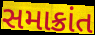
સમાક્રાંત